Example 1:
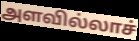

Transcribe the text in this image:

அளவில்லாச்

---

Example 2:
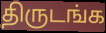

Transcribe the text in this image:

திருடங்க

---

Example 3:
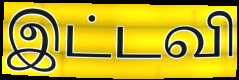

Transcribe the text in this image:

இட்டவி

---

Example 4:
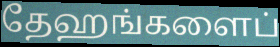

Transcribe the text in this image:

தேஹங்களைப்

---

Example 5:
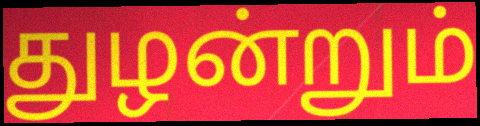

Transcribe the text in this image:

துழன்றும்